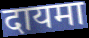
दायमा